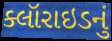
ક્લૉરાઇડનું